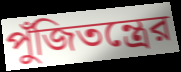
পুঁজিতন্ত্রের